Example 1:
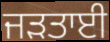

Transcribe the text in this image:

ਜੜਤਾਈ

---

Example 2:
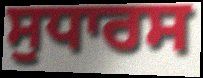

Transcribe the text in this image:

ਸੁਧਾਰਸ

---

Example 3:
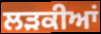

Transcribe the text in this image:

ਲੜਕੀਆਂ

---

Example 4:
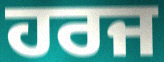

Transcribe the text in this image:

ਹਰਜ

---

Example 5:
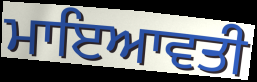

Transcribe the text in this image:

ਮਾਇਆਵਤੀ